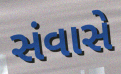
સંવાસે